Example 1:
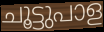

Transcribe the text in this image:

ചൂട്ടുപാള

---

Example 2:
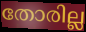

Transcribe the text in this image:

തോരില്ല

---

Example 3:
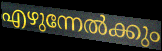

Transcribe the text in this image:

എഴുന്നേൽക്കും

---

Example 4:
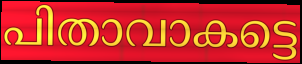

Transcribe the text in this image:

പിതാവാകട്ടെ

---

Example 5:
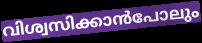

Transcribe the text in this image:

വിശ്വസിക്കാൻപോലും